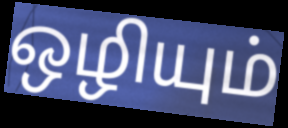
ஒழியும்